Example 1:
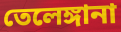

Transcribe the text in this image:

তেলেঙ্গানা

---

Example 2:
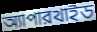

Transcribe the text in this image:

অ্যাপারথাইড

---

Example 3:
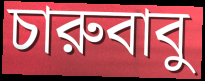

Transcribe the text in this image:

চারুবাবু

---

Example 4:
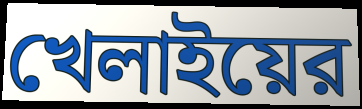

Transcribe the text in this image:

খেলাইয়ের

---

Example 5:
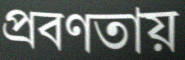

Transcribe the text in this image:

প্রবণতায়